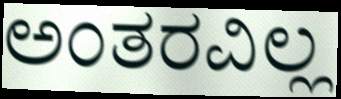
ಅಂತರವಿಲ್ಲ